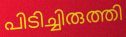
പിടിച്ചിരുത്തി